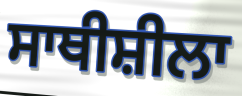
ਸਾਥੀਸ਼ੀਲਾ